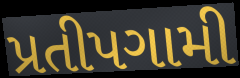
પ્રતીપગામી